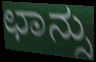
ಛಾನ್ಸು